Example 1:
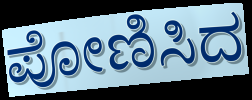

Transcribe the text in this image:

ಪೋಣಿಸಿದ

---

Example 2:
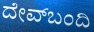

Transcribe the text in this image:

ದೇವ್‌ಬಂದಿ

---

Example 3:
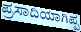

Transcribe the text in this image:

ಪ್ರಸಾದಿಯಾಗಿಪ್ಪ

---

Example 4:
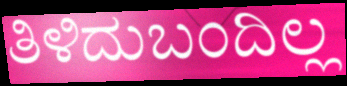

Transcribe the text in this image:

ತಿಳಿದುಬಂದಿಲ್ಲ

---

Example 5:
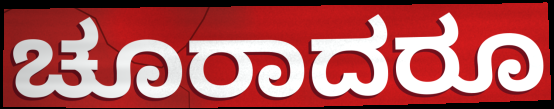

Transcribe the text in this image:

ಚೂರಾದರೂ